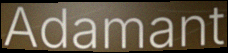
Adamant